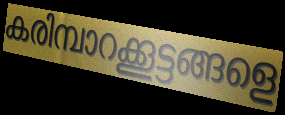
കരിമ്പാറക്കൂട്ടങ്ങളെ